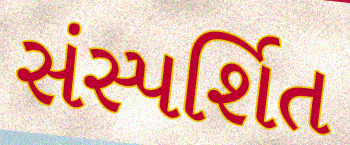
સંસ્પર્શિત